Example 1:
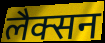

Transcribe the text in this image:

लैक्सन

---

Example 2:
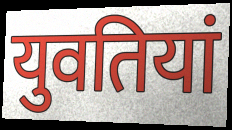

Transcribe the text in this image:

युवतियां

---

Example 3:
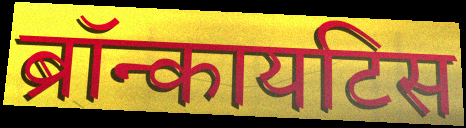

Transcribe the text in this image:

ब्रॉन्कायटिस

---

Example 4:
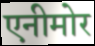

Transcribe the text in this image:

एनीमोर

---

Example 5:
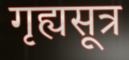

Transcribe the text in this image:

गृह्यसूत्र